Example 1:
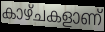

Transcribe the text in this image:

കാഴ്ചകളാണ്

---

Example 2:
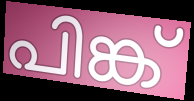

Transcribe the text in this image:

പിങ്ക്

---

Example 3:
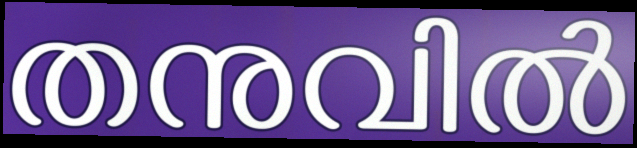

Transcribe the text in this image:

തനുവിൽ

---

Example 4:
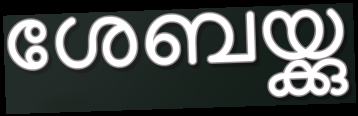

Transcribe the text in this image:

ശേബയ്ക്കു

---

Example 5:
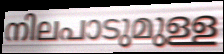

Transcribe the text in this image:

നിലപാടുമുള്ള